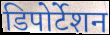
डिपोर्टेशन